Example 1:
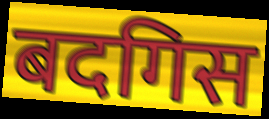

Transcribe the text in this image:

बदगिस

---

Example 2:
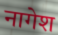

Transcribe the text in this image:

नागेश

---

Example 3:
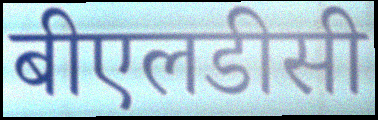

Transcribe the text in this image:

बीएलडीसी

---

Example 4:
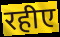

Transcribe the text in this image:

रहीए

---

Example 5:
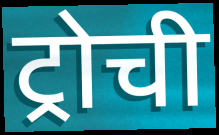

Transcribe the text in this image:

ट्रोची